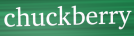
chuckberry